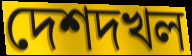
দেশদখল